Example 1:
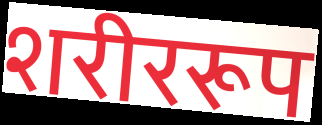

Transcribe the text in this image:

शरीररूप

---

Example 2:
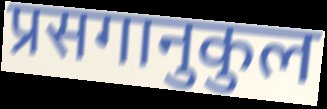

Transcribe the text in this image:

प्रसगानुकुल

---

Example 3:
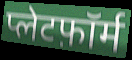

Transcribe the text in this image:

प्लेटफ़ॉर्म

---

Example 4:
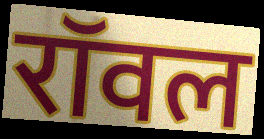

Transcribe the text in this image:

रॉवल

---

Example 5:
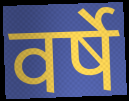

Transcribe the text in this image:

वर्षे